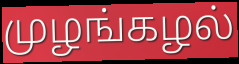
முழங்கழல்